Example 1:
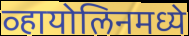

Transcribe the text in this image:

व्हायोलिनमध्ये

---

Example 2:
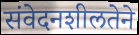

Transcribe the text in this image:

संवेदनशीलतेने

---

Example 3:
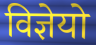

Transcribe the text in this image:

विज्ञेयो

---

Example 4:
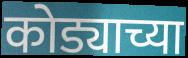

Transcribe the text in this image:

कोड्याच्या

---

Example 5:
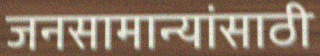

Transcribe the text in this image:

जनसामान्यांसाठी